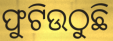
ଫୁଟିଉଠୁଛି